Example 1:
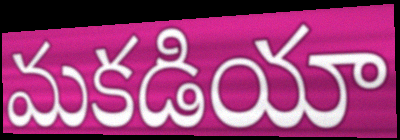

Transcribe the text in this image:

మకడియా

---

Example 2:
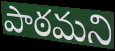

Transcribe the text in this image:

పాఠమని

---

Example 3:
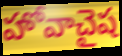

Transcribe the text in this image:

హోవాచైష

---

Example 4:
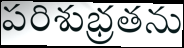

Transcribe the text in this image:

పరిశుభ్రతను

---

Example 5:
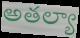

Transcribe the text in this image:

అతల్యా